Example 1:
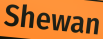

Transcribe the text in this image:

Shewan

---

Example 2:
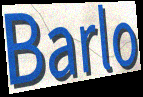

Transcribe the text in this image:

Barlo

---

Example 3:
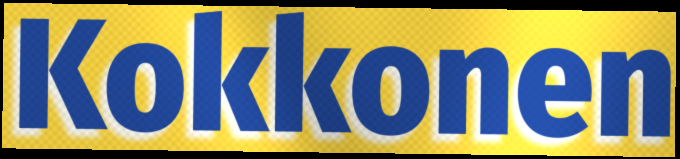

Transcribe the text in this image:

Kokkonen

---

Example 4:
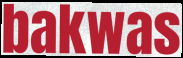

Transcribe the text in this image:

bakwas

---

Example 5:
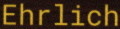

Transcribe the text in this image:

Ehrlich